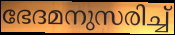
ഭേദമനുസരിച്ച്